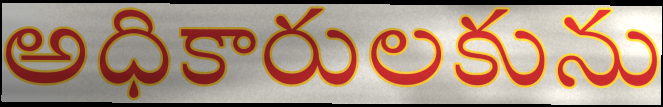
అధికారులకును